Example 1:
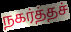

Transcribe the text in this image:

நகர்த்தச்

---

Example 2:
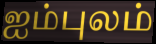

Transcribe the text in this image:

ஐம்புலம்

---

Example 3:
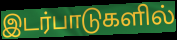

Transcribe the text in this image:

இடர்பாடுகளில்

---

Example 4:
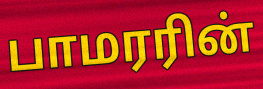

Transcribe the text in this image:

பாமரரின்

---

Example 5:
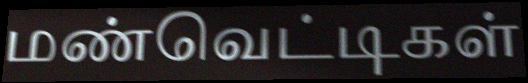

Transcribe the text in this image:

மண்வெட்டிகள்